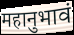
महानुभावं